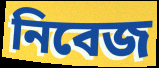
নিবেজ